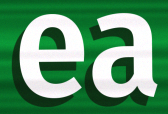
ea